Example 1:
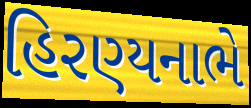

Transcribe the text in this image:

હિરણ્યનાભે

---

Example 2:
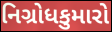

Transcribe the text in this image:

નિગ્રોધકુમારો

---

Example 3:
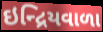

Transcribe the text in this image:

ઇન્દ્રિયવાળા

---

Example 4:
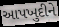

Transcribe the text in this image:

આપખુદીને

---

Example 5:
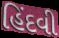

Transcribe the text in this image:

હિંદવી